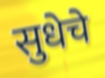
सुधेचे